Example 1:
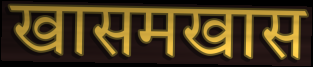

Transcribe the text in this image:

खासमखास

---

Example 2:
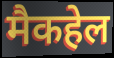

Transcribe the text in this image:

मैकहेल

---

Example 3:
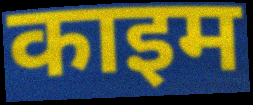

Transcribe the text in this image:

काइम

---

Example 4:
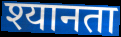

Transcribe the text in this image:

श्यानता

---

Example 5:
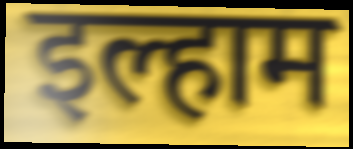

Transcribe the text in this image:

इल्हाम